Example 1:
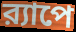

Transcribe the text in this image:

র‍্যাপে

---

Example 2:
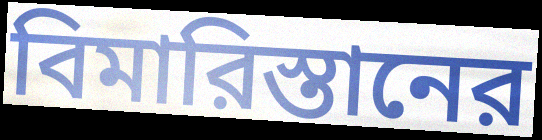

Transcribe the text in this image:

বিমারিস্তানের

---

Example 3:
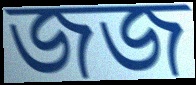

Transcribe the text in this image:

জজ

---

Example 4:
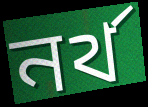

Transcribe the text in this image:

নর্থ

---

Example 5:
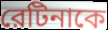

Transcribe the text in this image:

রেটিনাকে